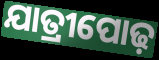
ଯାତ୍ରୀପୋଢ଼